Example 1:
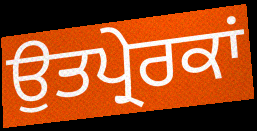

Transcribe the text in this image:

ਉਤਪ੍ਰੇਰਕਾਂ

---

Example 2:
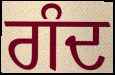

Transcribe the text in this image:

ਗੰਦ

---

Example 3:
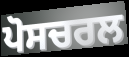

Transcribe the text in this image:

ਪੋਸਚਰਲ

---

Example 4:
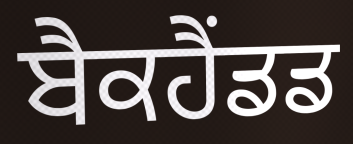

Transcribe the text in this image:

ਬੈਕਹੈਂਡਡ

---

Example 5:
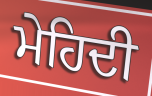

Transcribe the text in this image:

ਮੇਹਿਦੀ